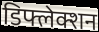
डिफ्लेक्शन